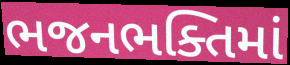
ભજનભક્તિમાં